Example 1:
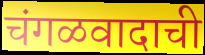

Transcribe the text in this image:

चंगळवादाची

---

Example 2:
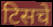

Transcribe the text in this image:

टिसचे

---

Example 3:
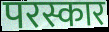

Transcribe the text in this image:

परस्कार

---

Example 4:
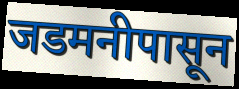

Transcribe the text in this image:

जडमनीपासून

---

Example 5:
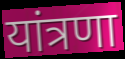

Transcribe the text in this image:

यांत्रणा